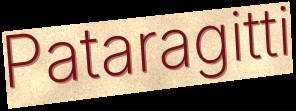
Pataragitti